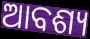
ଆବଶ୍ୟ